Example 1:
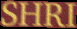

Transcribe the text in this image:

SHRI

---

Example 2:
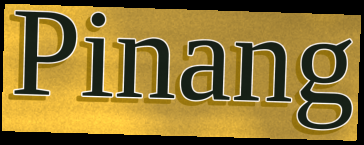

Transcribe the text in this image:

Pinang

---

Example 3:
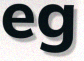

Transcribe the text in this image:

eg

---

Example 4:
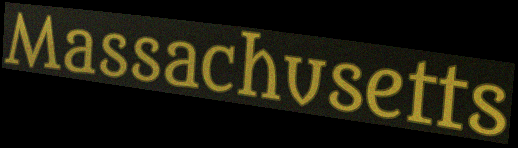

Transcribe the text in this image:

Massachusetts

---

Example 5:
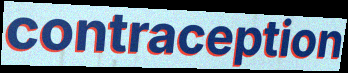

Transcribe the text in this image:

contraception